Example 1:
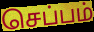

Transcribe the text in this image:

செப்பம்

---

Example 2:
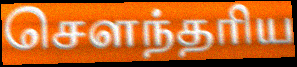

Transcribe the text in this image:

சௌந்தரிய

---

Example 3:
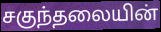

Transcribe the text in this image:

சகுந்தலையின்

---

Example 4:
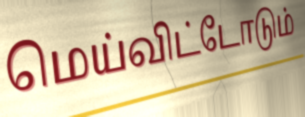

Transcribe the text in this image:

மெய்விட்டோடும்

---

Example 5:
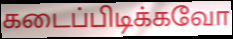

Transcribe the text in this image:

கடைப்பிடிக்கவோ